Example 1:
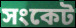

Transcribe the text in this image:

সংকেট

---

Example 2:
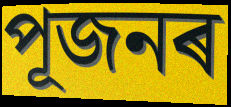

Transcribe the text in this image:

পূজনৰ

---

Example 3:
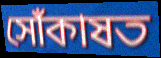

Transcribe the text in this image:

সোঁকাষত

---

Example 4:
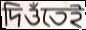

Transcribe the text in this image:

দিওঁতেই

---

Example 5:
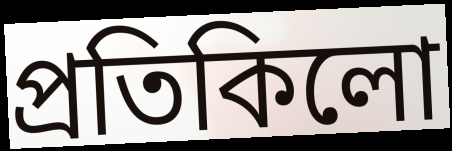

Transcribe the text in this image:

প্ৰতিকিলো